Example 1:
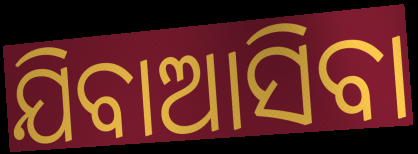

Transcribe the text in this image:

ଯିବାଆସିବା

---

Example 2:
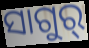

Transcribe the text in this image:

ସାଗୁର୍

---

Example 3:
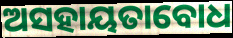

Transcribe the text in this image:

ଅସହାୟତାବୋଧ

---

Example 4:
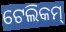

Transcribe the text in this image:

ଟେଲିକମ୍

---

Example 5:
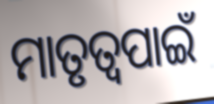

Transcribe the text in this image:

ମାତୃତ୍ୱପାଇଁ